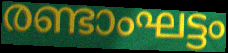
രണ്ടാംഘട്ടം